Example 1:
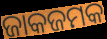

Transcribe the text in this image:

ଜାକଜମକ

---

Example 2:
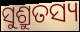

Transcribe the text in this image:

ସୁଶ୍ରୁତସ୍ୟ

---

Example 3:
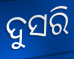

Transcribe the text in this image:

ଦୁସରି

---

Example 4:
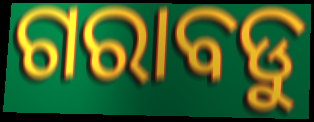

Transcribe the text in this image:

ଗରାବଡୁ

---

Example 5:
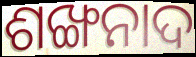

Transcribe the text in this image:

ଶଙ୍ଖନାଦ